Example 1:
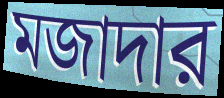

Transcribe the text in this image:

মজাদার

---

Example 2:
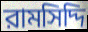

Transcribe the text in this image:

রামসিদ্দি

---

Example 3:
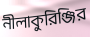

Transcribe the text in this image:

নীলাকুরিঞ্জির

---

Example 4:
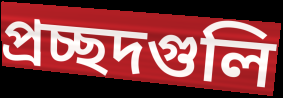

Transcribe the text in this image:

প্রচ্ছদগুলি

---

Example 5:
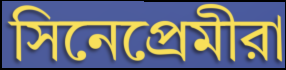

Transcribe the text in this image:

সিনেপ্রেমীরা